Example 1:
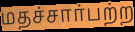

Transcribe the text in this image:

மதச்சார்பற்ற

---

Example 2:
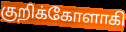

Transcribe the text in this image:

குறிக்கோளாகி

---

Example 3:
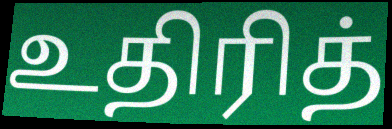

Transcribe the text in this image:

உதிரித்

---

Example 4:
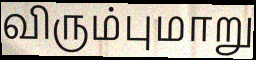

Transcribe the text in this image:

விரும்புமாறு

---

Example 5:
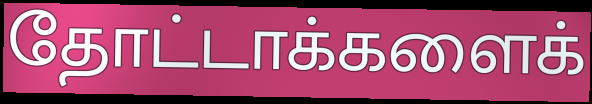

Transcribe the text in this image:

தோட்டாக்களைக்